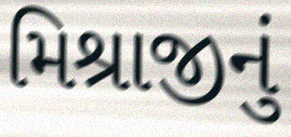
મિશ્રાજીનું